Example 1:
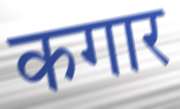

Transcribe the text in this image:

कगार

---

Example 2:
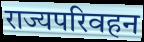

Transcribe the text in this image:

राज्यपरिवहन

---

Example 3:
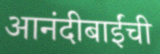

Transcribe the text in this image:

आनंदीबाईंची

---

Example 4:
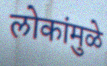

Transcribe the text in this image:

लोकांमुळे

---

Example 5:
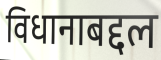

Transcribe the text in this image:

विधानाबद्दल